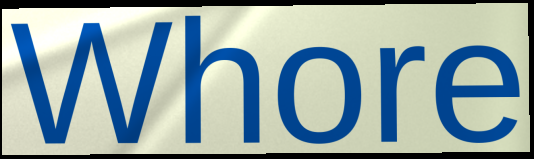
Whore